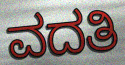
ವದತಿ